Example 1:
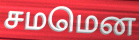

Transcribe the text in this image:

சமமென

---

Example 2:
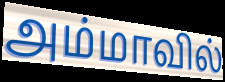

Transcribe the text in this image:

அம்மாவில்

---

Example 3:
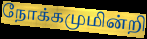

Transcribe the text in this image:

நோக்கமுமின்றி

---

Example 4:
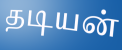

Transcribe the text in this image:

தடியன்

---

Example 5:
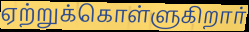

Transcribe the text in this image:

ஏற்றுக்கொள்ளுகிறார்